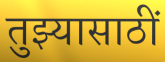
तुझ्यासाठीं